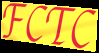
FCTC